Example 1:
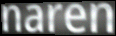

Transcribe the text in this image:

naren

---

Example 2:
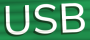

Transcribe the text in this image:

USB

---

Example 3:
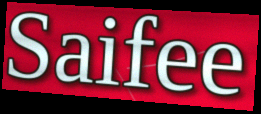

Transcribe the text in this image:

Saifee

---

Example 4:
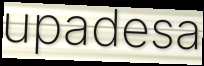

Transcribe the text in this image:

upadesa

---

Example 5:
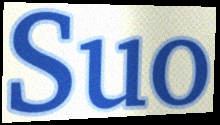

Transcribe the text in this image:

Suo